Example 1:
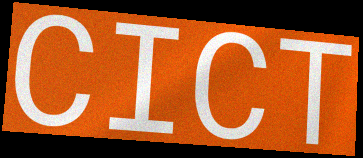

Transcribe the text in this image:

CICT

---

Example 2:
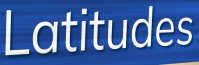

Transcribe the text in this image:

Latitudes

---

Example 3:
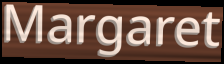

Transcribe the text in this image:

Margaret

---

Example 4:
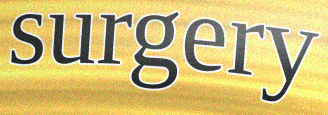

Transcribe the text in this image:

surgery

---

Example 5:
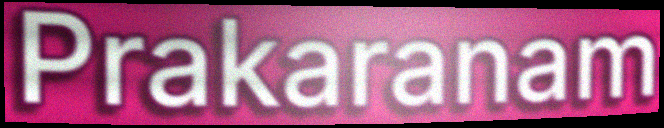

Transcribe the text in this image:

Prakaranam